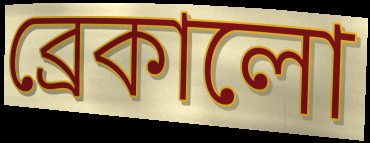
ব্রেকালো